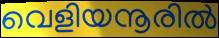
വെളിയനൂരിൽ